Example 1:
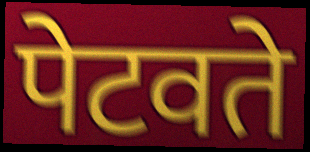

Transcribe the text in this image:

पेटवते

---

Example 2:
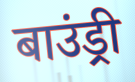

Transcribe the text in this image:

बाउंड्री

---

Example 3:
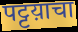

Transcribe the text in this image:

पट्टय़ाचा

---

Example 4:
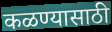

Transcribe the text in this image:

कळण्यासाठी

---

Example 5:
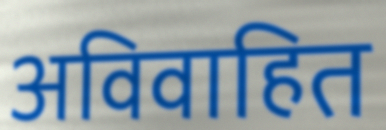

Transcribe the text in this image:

अविवाहित